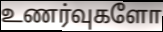
உணர்வுகளோ